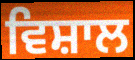
ਵਿਸ਼ਾਲ